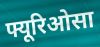
फ्यूरिओसा